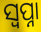
ସ୍ୱପ୍ନା